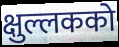
क्षुल्लकको